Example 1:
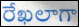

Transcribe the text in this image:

రేఖలాగా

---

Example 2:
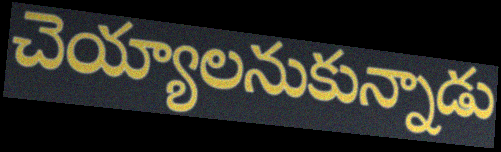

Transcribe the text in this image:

చెయ్యాలనుకున్నాడు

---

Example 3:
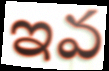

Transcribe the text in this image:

ఇవ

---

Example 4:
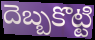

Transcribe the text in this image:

దెబ్బకొట్టి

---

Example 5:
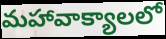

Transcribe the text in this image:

మహావాక్యాలలో